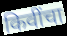
किवींचा